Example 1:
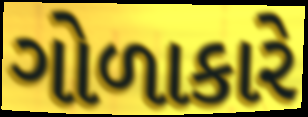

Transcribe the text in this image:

ગોળાકારે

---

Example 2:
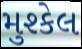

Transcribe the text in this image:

મુશ્કેલ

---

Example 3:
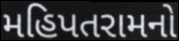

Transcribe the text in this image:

મહિપતરામનો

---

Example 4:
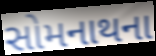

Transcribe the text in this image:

સોમનાથના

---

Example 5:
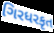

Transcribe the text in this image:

ગિરધરકૃત